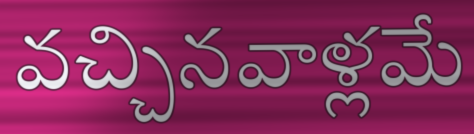
వచ్చినవాళ్లమే